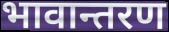
भावान्तरण